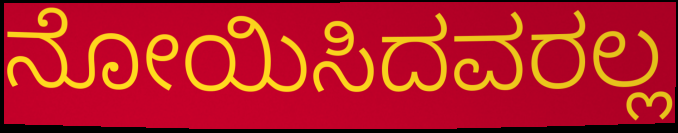
ನೋಯಿಸಿದವರಲ್ಲ